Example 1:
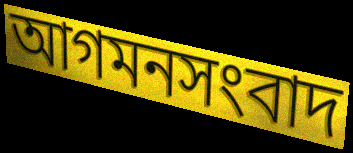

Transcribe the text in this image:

আগমনসংবাদ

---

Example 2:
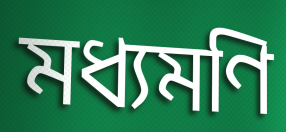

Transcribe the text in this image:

মধ্যমণি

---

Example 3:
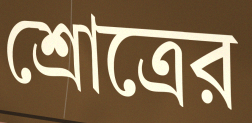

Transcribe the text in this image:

শ্রোত্রের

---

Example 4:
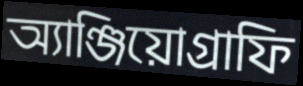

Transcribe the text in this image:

অ্যাঞ্জিয়োগ্রাফি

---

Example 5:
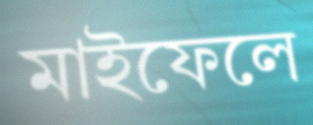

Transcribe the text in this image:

মাইফেলে